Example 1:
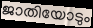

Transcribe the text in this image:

ജാതിയോടും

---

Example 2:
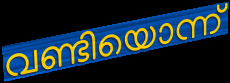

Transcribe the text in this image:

വണ്ടിയൊന്ന്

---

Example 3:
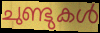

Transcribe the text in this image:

ചുണ്ടുകൾ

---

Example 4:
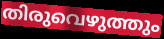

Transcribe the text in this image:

തിരുവെഴുത്തും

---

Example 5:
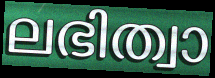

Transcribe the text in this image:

ലഭിത്വാ